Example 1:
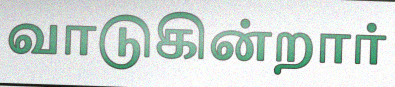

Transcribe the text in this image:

வாடுகின்றார்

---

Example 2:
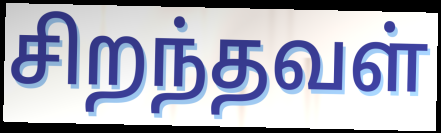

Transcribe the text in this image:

சிறந்தவள்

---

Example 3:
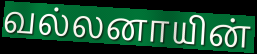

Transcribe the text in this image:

வல்லனாயின்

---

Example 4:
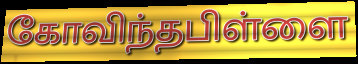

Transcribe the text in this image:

கோவிந்தபிள்ளை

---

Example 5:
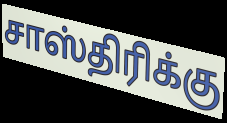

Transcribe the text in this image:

சாஸ்திரிக்கு